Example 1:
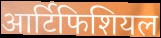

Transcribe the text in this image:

आर्टिफिशियल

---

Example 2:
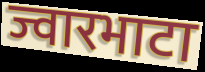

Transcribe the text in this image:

ज्वारभाटा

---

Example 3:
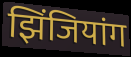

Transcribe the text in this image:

झिंजियांग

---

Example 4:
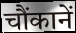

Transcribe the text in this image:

चौंकानें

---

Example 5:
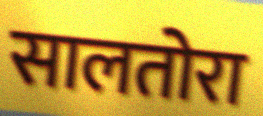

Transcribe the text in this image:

सालतोरा